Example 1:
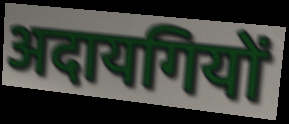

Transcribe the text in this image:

अदायगियों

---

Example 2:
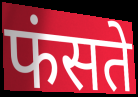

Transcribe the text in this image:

फंसते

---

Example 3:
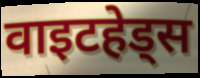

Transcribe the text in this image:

वाइटहेड्स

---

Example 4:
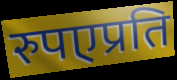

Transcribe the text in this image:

रुपएप्रति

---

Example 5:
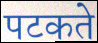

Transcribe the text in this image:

पटकते